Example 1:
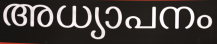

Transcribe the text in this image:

അധ്യാപനം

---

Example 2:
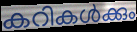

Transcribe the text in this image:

കറികൾക്കും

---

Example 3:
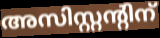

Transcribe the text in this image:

അസിസ്റ്റന്റിന്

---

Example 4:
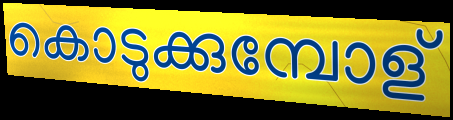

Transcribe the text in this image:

കൊടുക്കുമ്പോള്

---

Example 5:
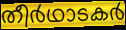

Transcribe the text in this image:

തീർഥാടകർ